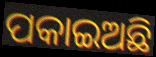
ପକାଇଅଛି